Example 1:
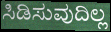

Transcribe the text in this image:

ಸಿಡಿಸುವುದಿಲ್ಲ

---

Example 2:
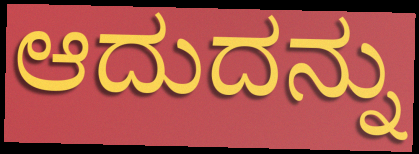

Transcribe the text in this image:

ಆದುದನ್ನು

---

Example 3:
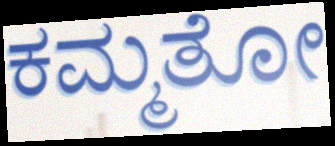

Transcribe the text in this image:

ಕಮ್ಮತೋ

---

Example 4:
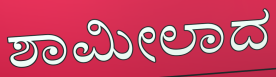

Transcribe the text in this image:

ಶಾಮೀಲಾದ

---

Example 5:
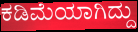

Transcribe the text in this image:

ಕಡಿಮೆಯಾಗಿದ್ದು